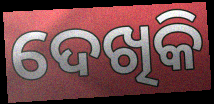
ଦେଖିକି